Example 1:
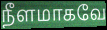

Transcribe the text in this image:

நீளமாகவே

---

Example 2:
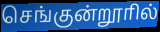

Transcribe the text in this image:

செங்குன்றூரில்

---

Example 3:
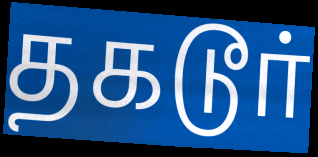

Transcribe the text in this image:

தகடூர்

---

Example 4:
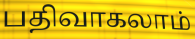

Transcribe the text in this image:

பதிவாகலாம்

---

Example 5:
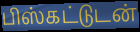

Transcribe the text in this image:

பிஸ்கட்டுடன்